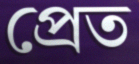
প্ৰেত